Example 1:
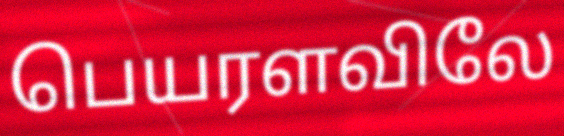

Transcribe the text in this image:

பெயரளவிலே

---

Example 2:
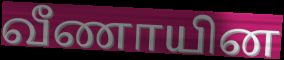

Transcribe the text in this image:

வீணாயின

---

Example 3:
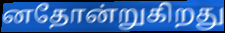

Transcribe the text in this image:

னதோன்றுகிறது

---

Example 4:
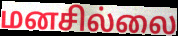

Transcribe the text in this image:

மனசில்லை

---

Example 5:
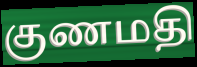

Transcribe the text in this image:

குணமதி